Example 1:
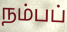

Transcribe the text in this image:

நம்பப்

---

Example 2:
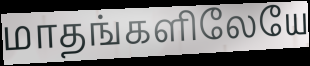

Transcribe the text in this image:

மாதங்களிலேயே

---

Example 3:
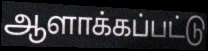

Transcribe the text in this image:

ஆளாக்கப்பட்டு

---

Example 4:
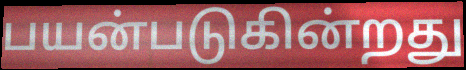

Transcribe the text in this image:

பயன்படுகின்றது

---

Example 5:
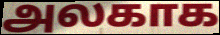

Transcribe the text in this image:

அலகாக